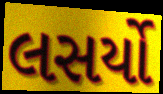
લસર્યો